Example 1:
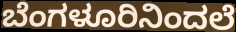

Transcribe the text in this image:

ಬೆಂಗಳೂರಿನಿಂದಲೆ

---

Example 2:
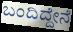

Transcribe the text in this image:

ಬಂದಿದ್ದೇನೆ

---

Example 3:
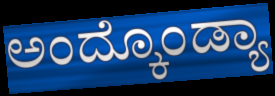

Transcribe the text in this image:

ಅಂದ್ಕೊಂಡ್ಯಾ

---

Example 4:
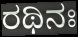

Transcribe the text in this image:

ರಥಿನಃ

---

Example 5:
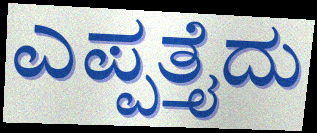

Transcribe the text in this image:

ಎಪ್ಪತ್ತೈದು